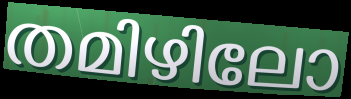
തമിഴിലോ